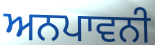
ਅਨਪਾਵਨੀ